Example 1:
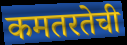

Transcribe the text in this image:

कमतरतेची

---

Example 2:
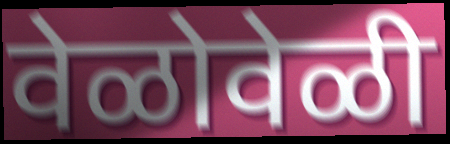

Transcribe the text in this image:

वेळोवेळी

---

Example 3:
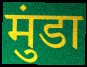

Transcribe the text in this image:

मुंडा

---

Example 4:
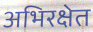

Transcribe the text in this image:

अभिरक्षेत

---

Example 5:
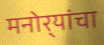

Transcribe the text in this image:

मनोर्‍यांचा